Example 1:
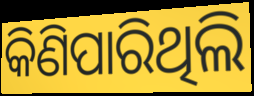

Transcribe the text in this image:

କିଣିପାରିଥିଲି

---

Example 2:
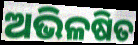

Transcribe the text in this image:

ଅଭିଳଷିତ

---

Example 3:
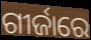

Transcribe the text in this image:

ଗୀର୍ଜାରେ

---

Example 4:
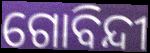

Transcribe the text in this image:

ଗୋବିନ୍ଦୀ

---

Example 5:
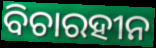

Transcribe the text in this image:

ବିଚାରହୀନ